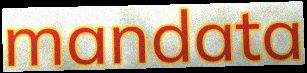
mandata